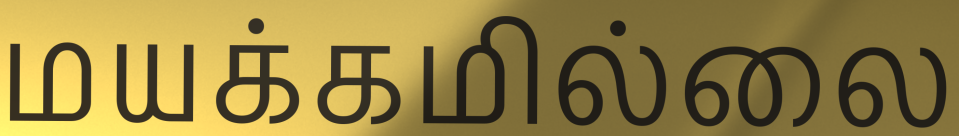
மயக்கமில்லை